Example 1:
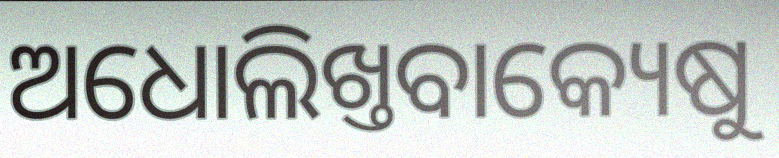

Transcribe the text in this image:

ଅଧୋଲିଖ୍ତବାକ୍ୟେଷୁ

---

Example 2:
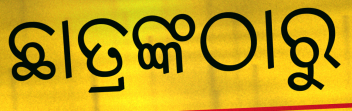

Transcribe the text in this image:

ଛାତ୍ରଙ୍କଠାରୁ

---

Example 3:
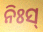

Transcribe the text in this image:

ନିଃସ୍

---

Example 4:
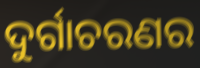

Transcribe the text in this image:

ଦୁର୍ଗାଚରଣର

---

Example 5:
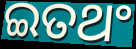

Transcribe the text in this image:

ଇତଥଂ